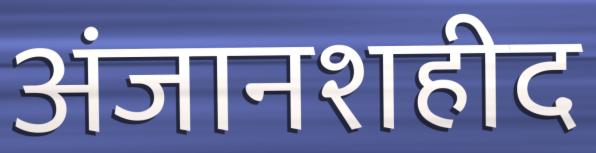
अंजानशहीद